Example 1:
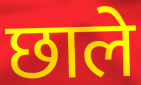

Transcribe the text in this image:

छाले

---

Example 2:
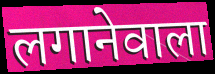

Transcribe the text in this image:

लगानेवाला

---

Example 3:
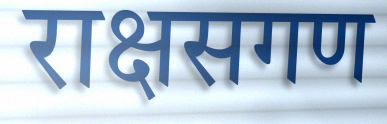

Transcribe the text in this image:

राक्षसगण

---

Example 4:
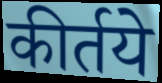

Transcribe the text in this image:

कीर्तये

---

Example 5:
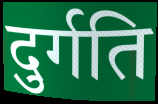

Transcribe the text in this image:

दुर्गति